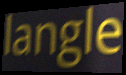
langle